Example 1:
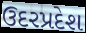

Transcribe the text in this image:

ઉદરપ્રદેશ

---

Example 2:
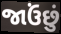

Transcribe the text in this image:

જાઉંછું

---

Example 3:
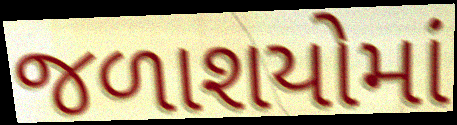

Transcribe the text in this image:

જળાશયોમાં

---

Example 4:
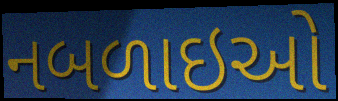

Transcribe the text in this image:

નબળાઇઓ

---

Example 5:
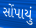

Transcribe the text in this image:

સોંપાયું